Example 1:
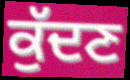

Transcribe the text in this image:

ਕੁੱਦਣ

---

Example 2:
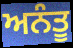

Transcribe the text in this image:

ਅਨੰਤੂ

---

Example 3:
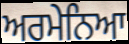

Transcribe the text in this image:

ਅਰਮੇਨਿਆ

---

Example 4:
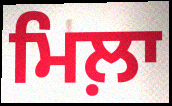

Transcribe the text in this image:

ਮਿਲ਼ਾ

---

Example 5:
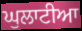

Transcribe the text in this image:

ਘੁਲਾਟੀਆ